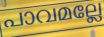
പാവമല്ലേ